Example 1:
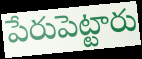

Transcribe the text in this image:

పేరుపెట్టారు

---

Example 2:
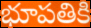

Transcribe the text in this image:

భూపతికి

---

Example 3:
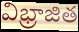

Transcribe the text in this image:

విభ్రాజిత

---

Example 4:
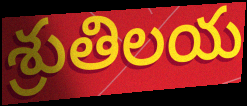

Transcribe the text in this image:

శ్రుతిలయ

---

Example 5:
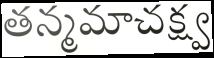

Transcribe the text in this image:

తన్మమాచక్ష్వ